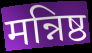
मन्निष्ठ